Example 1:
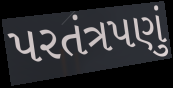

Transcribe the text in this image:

પરતંત્રપણું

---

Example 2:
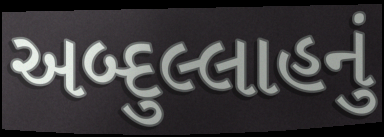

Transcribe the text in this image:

અબ્દુલ્લાહનું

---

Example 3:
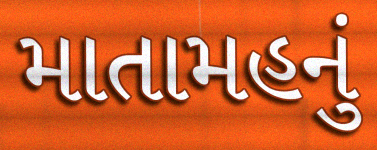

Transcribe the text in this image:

માતામહનું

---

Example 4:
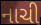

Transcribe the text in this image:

નાચી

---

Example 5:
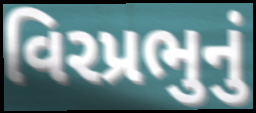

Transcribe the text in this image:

વિરપ્રભુનું